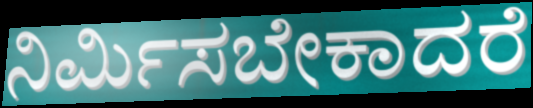
ನಿರ್ಮಿಸಬೇಕಾದರೆ